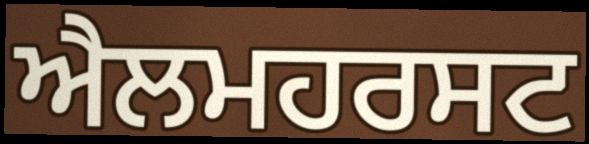
ਐਲਮਹਰਸਟ